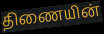
திணையின்